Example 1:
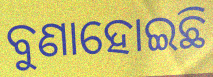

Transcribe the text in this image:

ବୁଣାହୋଇଛି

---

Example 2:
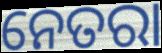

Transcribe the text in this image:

ନେତରା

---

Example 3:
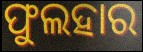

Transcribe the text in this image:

ଫୁଲହାର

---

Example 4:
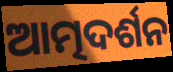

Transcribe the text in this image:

ଆତ୍ମଦର୍ଶନ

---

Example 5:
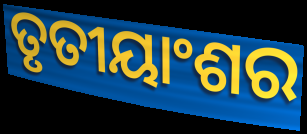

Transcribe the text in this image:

ତୃତୀୟାଂଶର